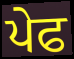
ਪੇਫ